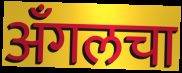
अँगलचा